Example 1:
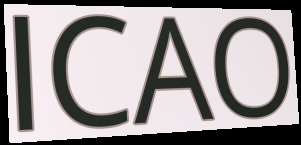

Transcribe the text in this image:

ICAO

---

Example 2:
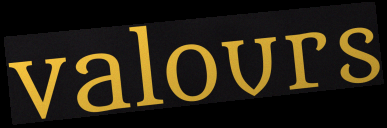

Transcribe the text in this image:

valours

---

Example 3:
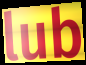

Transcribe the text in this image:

lub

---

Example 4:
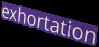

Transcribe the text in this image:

exhortation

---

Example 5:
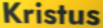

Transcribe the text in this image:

Kristus